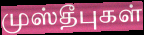
முஸ்தீபுகள்